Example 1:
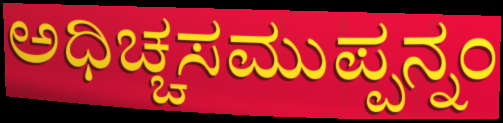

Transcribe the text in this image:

ಅಧಿಚ್ಚಸಮುಪ್ಪನ್ನಂ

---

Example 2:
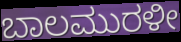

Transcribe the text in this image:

ಬಾಲಮುರಳೀ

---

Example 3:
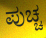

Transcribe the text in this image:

ಪುಚ್ಚ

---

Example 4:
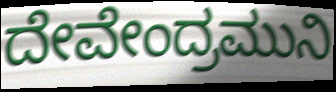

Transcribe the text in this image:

ದೇವೇಂದ್ರಮುನಿ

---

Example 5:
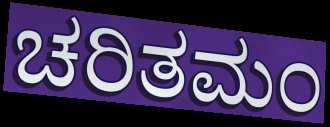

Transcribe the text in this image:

ಚರಿತಮಂ